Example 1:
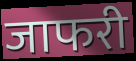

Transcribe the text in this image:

जाफरी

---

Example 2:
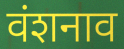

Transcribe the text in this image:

वंशनाव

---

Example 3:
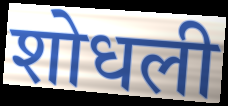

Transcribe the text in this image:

शोधली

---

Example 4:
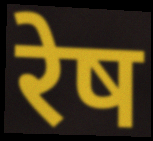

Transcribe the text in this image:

रेष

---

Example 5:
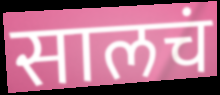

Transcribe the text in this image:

सालचं